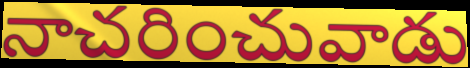
నాచరించువాడు